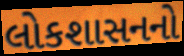
લોકશાસનનો